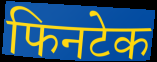
फिनटेक